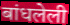
बांधलेली